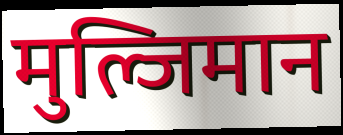
मुल्जिमान